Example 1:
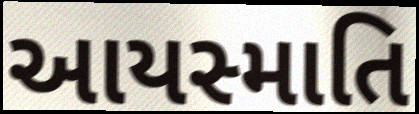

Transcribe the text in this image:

આયસ્માતિ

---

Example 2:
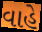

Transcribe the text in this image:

વાહે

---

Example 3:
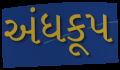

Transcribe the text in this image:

અંધકૂપ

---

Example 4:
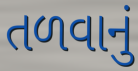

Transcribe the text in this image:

તળવાનું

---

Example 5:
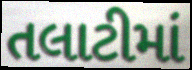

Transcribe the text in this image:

તલાટીમાં